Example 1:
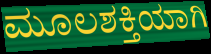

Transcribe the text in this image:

ಮೂಲಶಕ್ತಿಯಾಗಿ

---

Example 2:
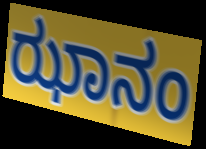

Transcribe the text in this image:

ಝಾನಂ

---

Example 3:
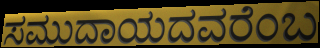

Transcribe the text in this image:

ಸಮುದಾಯದವರೆಂಬ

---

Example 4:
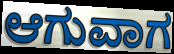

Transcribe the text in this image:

ಆಗುವಾಗ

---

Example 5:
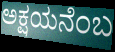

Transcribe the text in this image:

ಅಕ್ಷಯನೆಂಬ